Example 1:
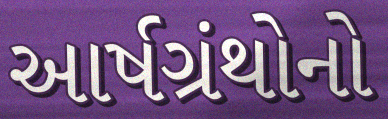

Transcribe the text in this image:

આર્ષગ્રંથોનો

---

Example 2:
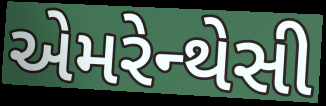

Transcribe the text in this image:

એમરેન્થેસી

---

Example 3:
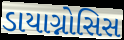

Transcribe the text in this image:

ડાયાગ્નોસિસ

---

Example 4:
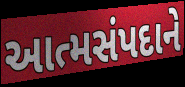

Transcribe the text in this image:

આત્મસંપદાને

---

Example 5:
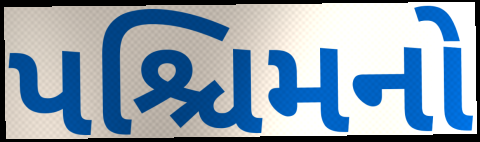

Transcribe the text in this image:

પશ્ચિમનો